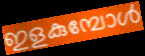
ഇളകുമ്പോൾ